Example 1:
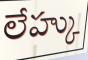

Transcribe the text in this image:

లేహ్కు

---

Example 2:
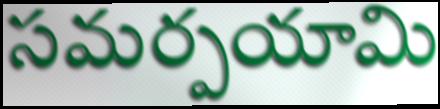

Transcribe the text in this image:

సమర్పయామి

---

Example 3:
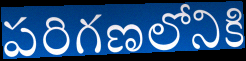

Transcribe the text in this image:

పరిగణలోనికి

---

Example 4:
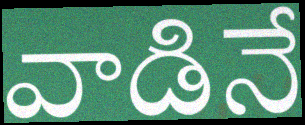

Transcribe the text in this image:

వాడినే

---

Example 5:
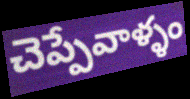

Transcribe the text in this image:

చెప్పేవాళ్ళం